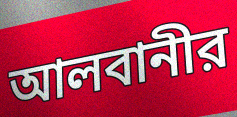
আলবানীর